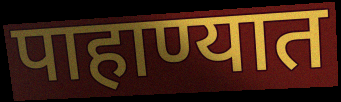
पाहाण्यात